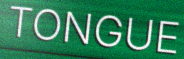
TONGUE